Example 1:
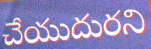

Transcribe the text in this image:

చేయుదురని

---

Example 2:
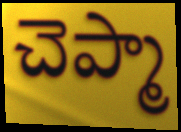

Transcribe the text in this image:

చెప్మా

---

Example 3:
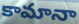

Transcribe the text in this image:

కామానా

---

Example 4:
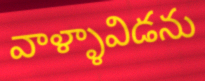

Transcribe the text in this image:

వాళ్ళావిడను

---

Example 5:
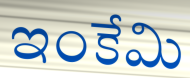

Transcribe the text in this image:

ఇంకేమి